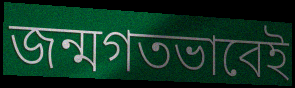
জন্মগতভাবেই